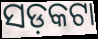
ସଡ଼କଟା